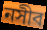
নসীব